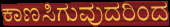
ಕಾಣಸಿಗುವುದರಿಂದ